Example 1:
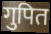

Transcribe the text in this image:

गुपित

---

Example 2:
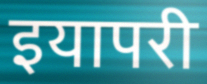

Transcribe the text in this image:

इयापरी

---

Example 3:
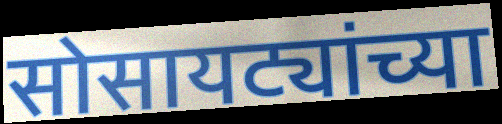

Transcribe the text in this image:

सोसायट्यांच्या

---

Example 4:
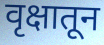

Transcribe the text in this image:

वृक्षातून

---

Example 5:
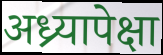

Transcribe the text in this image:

अध्र्यापेक्षा